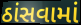
ઠાંસવામાં